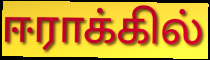
ஈராக்கில்